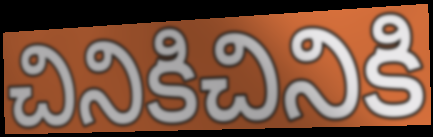
చినికిచినికి